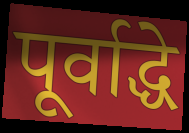
पूर्वाद्धे